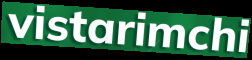
vistarimchi